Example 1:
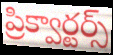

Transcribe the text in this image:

ప్రిక్వార్టర్స్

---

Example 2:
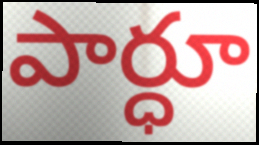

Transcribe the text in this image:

పార్ధూ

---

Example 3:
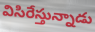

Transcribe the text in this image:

విసిరేస్తున్నాడు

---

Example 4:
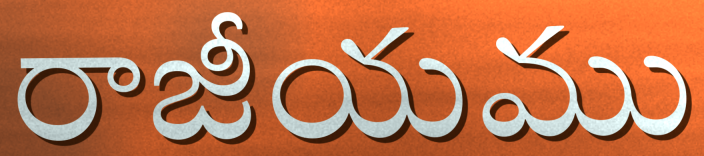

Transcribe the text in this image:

రాజీయము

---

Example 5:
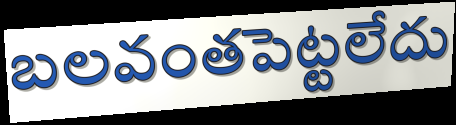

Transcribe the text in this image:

బలవంతపెట్టలేదు